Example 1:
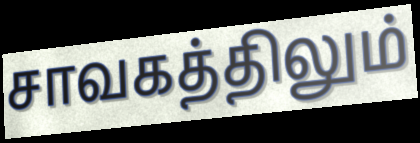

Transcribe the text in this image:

சாவகத்திலும்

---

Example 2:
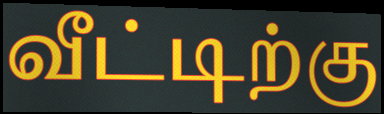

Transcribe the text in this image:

வீட்டிற்கு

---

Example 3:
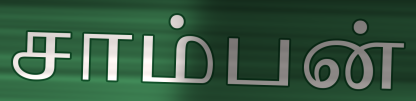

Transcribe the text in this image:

சாம்பன்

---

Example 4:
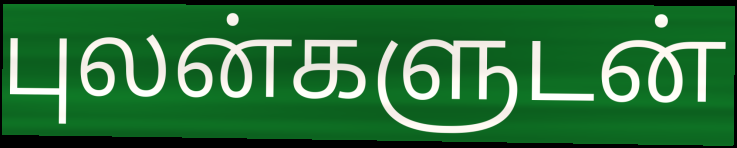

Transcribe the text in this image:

புலன்களுடன்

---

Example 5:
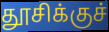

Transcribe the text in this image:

தூசிக்குச்